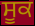
ਸੂਕ